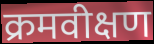
क्रमवीक्षण